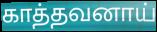
காத்தவனாய்